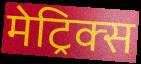
मेट्रिक्‍स